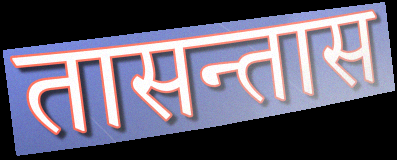
तासन्तास